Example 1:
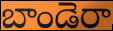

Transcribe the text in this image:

బాండెరా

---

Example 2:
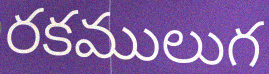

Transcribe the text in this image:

రకములుగ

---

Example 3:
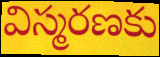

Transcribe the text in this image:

విస్మరణకు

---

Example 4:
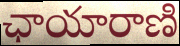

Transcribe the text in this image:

ఛాయారాణి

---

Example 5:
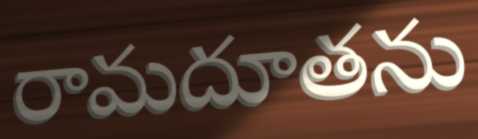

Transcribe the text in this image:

రామదూతను